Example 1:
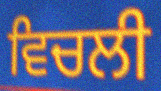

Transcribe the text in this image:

ਵਿਚਲੀ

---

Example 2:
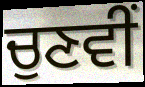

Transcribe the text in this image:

ਚੁਣਵੀਂ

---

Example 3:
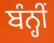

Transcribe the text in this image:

ਬੰਨ੍ਹੀਂ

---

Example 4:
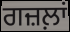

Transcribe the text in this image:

ਗਜ਼ਲ਼ਾਂ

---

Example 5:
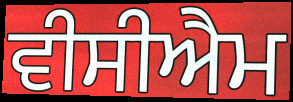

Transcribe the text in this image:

ਵੀਸੀਐਮ